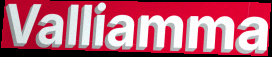
Valliamma